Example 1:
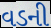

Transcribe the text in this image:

વડની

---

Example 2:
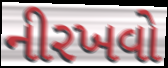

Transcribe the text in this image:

નીરખવો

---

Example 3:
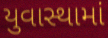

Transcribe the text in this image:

યુવાસ્થામાં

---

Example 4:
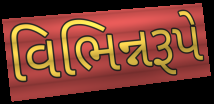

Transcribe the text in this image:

વિભિન્નરૂપે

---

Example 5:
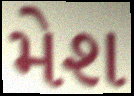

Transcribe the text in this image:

મેશ